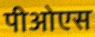
पीओएस